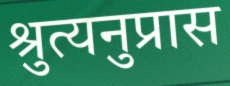
श्रुत्यनुप्रास